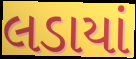
લડાયાં